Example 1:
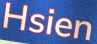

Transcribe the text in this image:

Hsien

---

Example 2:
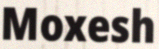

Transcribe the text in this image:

Moxesh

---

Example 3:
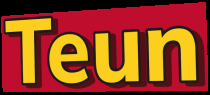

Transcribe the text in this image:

Teun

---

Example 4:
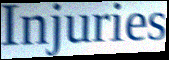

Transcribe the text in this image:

Injuries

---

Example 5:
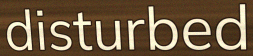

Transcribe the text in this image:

disturbed